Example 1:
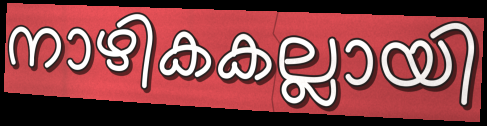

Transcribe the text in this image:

നാഴികകല്ലായി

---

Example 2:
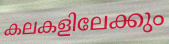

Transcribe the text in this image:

കലകളിലേക്കും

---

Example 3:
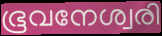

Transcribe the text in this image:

ഭൂവനേശ്വരി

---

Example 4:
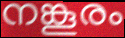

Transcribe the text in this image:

നങ്കൂരം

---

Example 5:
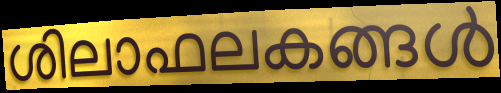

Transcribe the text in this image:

ശിലാഫലകങ്ങൾ